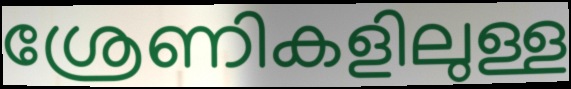
ശ്രേണികളിലുള്ള